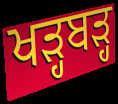
ਖੜ੍ਹਬੜ੍ਹ